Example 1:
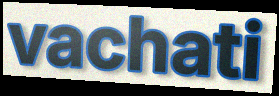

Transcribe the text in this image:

vachati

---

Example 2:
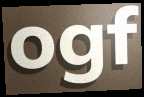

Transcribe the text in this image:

ogf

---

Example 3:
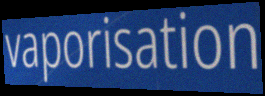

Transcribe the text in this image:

vaporisation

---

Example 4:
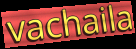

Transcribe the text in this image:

vachaila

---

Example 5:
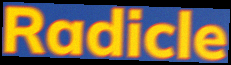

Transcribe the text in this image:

Radicle